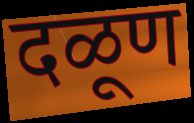
दळूण